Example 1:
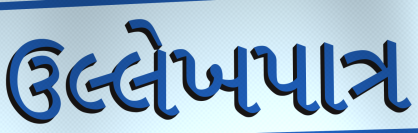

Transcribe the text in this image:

ઉલ્લેખપાત્ર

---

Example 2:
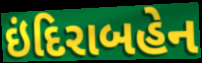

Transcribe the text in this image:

ઇંદિરાબહેન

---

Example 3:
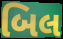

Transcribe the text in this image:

બિલ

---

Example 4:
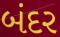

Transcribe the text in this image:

બંદર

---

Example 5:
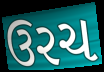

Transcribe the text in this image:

ઉરચ